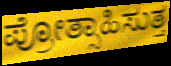
ಪ್ರೋತ್ಸಾಹಿಸುತ್ತ